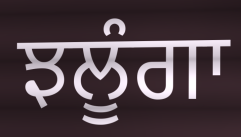
ਝਲੂੰਗਾ